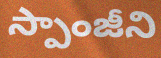
స్పాంజీని